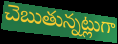
చెబుతున్నట్లుగా